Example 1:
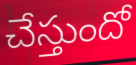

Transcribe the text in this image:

చేస్తుందో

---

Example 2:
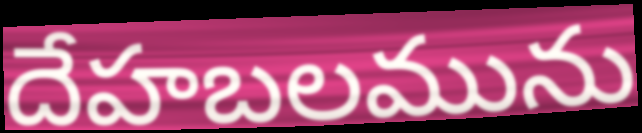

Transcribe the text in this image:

దేహబలమును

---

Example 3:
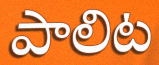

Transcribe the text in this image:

పాలిట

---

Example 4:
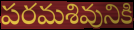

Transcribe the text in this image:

పరమశివునికి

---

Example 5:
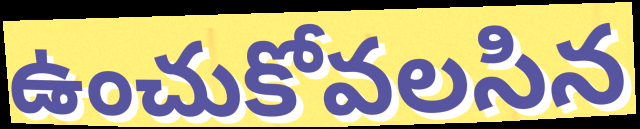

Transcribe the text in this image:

ఉంచుకోవలసిన